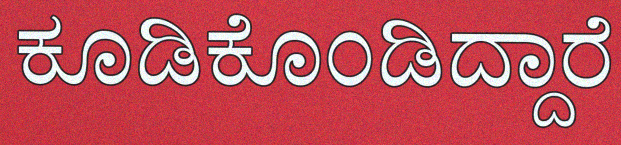
ಕೂಡಿಕೊಂಡಿದ್ದಾರೆ